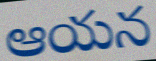
ఆయన